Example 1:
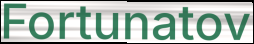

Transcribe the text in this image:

Fortunatov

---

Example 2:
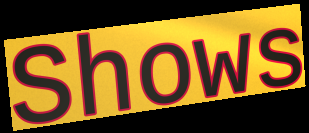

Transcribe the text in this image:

Shows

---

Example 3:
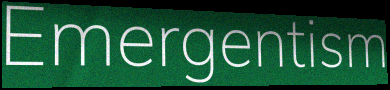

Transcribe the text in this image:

Emergentism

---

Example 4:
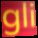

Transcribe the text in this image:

gli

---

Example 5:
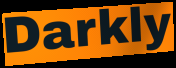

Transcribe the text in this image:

Darkly